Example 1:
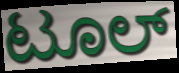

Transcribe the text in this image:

ಟೂಲ್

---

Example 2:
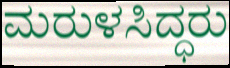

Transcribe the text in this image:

ಮರುಳಸಿದ್ಧರು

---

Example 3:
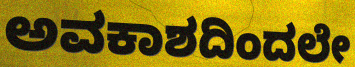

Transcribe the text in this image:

ಅವಕಾಶದಿಂದಲೇ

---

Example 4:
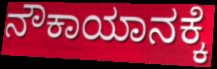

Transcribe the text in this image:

ನೌಕಾಯಾನಕ್ಕೆ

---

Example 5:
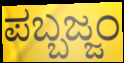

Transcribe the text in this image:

ಪಬ್ಬಜ್ಜಂ